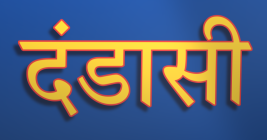
दंडासी